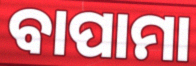
ବାପାମା